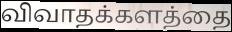
விவாதக்களத்தை